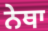
ਨੇਥਾ